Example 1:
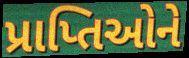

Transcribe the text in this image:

પ્રાપ્તિઓને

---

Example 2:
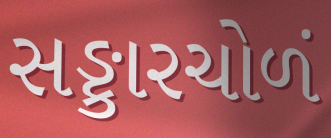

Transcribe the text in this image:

સઙ્કારચોળં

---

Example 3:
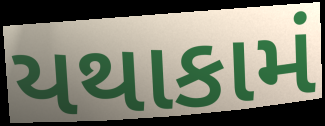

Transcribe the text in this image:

યથાકામં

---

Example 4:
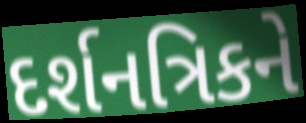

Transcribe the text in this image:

દર્શનત્રિકને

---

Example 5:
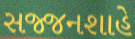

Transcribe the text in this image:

સજ્જનશાહે